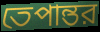
তেপান্তর